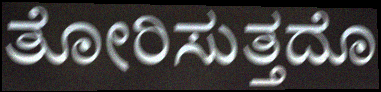
ತೋರಿಸುತ್ತದೊ